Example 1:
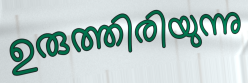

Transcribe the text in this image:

ഉരുത്തിരിയുന്നു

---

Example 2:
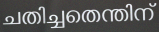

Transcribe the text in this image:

ചതിച്ചതെന്തിന്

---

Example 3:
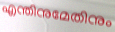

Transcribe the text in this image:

എന്തിനുമേതിനും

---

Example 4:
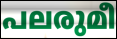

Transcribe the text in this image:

പലരുമീ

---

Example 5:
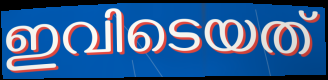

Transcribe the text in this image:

ഇവിടെയത്